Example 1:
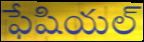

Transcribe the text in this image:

ఫేషియల్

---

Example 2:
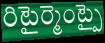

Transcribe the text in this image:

రిటైర్మెంట్పై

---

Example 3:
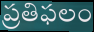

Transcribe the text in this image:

ప్రతిఫలం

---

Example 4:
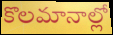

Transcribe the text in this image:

కొలమానాల్లో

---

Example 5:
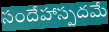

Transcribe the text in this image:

సందేహాస్పదమే